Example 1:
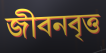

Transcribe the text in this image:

জীবনবৃত্ত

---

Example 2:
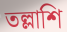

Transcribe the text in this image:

তল্লাশি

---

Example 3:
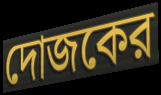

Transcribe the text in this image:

দোজকের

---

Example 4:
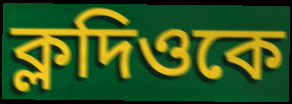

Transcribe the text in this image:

ক্লদিওকে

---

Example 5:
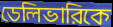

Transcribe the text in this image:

ডেলিভারিকে